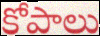
కోపాలు